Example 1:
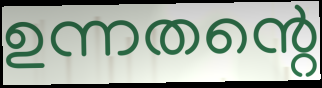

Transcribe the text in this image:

ഉന്നതന്റെ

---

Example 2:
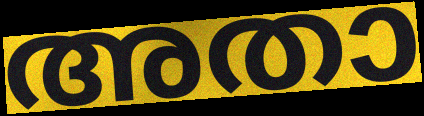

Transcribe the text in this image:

അതാ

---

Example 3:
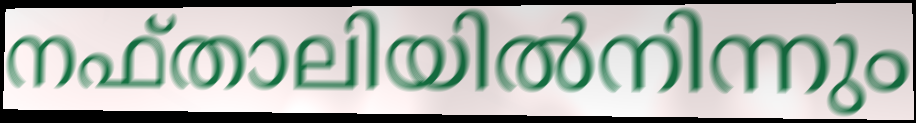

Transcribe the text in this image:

നഫ്താലിയിൽനിന്നും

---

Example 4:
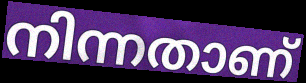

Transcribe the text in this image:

നിന്നതാണ്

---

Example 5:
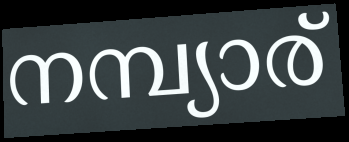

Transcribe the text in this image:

നമ്പ്യാര്